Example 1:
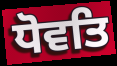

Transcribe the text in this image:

ਧੋਵਤਿ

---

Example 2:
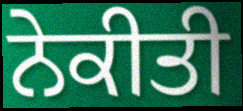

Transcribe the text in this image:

ਨੇਕੀਤੀ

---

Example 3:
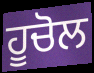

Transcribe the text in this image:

ਹੂਚੋਲ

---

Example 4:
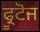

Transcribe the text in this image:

ਫ੍ਰੂਟੋਜ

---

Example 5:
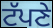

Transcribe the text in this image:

ਟੱਪਣੇ